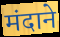
मंदाने